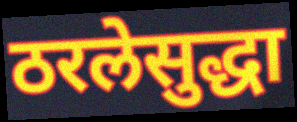
ठरलेसुद्धा